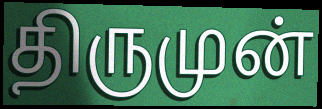
திருமுன்